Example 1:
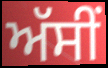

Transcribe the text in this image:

ਅੱਸੀਂ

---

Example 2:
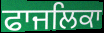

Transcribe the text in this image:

ਫਾਜਲਿਕਾ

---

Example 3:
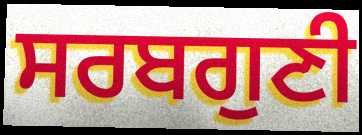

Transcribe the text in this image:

ਸਰਬਗੁਣੀ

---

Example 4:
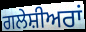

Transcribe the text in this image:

ਗਲੇਸ਼ੀਅਰਾਂ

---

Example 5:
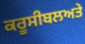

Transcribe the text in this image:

ਕਰੂਸੀਬਲਅਤੇ